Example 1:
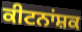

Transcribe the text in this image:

ਕੀਟਨਾਂਸ਼ਕ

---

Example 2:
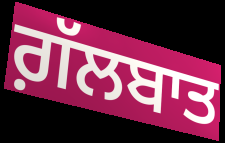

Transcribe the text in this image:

ਗ਼ੱਲਬਾਤ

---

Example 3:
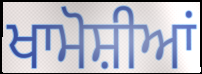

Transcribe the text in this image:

ਖਾਮੋਸ਼ੀਆਂ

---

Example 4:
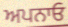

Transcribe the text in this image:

ਅਪਨਾਓ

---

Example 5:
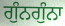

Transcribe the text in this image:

ਗੁੰਨਗੁੰਨਾ